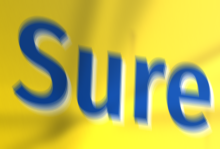
Sure